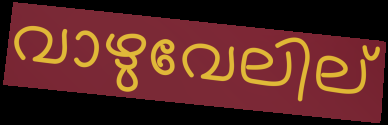
വാഴുവേലില്